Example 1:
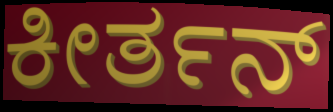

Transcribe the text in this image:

ಕೀರ್ತನ್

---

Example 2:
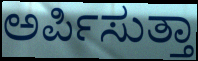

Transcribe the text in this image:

ಅರ್ಪಿಸುತ್ತಾ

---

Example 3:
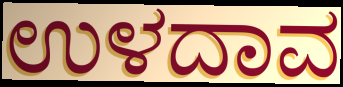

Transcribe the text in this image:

ಉಳದಾವ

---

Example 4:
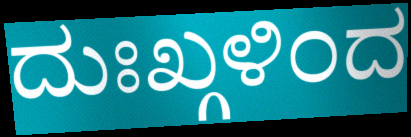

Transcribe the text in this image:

ದುಃಖ್ಗಳಿಂದ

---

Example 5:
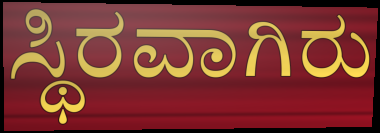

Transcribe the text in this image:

ಸ್ಥಿರವಾಗಿರು